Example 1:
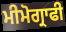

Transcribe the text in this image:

ਮੀਮੋਗ੍ਰਾਫੀ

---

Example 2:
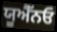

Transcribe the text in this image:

ਯੂਐੱਨਓ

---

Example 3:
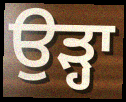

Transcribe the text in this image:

ਉੜ੍ਹਾ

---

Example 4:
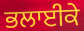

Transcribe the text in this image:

ਭਲਾਈਕੇ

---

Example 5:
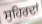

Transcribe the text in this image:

ਸੁਹਿਰਦਾਂ